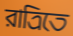
রাত্রিতে